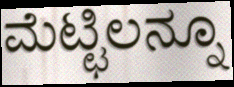
ಮೆಟ್ಟಿಲನ್ನೂ